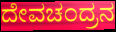
ದೇವಚಂದ್ರನ